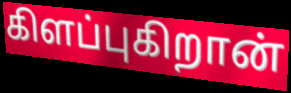
கிளப்புகிறான்